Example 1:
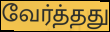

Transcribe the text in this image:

வேர்த்தது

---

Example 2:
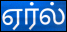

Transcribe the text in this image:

ஏர்ல்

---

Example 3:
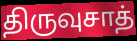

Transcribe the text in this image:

திருவுசாத்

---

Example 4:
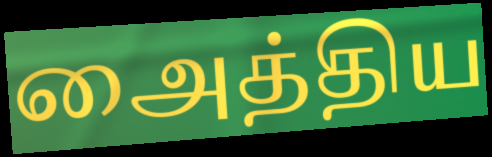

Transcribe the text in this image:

அைத்திய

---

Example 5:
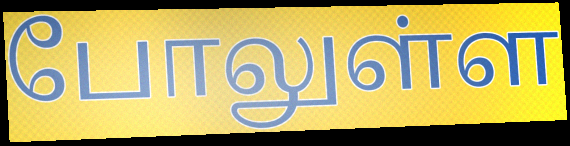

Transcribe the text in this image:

போலுள்ள